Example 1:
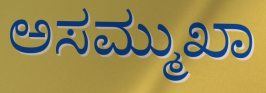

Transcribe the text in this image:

ಅಸಮ್ಮುಖಾ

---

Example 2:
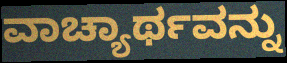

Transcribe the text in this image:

ವಾಚ್ಯಾರ್ಥವನ್ನು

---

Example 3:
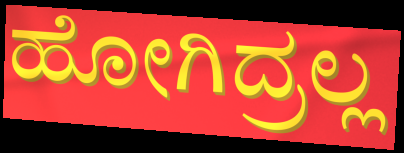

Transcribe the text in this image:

ಹೋಗಿದ್ರಲ್ಲ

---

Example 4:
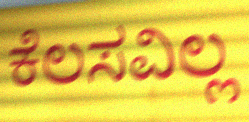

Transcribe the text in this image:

ಕೆಲಸವಿಲ್ಲ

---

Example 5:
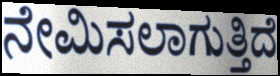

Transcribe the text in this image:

ನೇಮಿಸಲಾಗುತ್ತಿದೆ